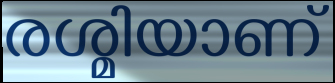
രശ്മിയാണ്